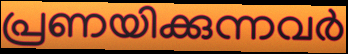
പ്രണയിക്കുന്നവർ